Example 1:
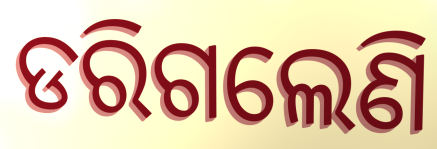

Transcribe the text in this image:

ଡରିଗଲେଣି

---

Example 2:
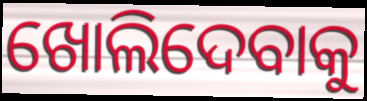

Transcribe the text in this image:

ଖୋଲିଦେବାକୁ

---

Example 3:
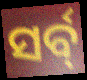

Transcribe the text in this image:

ସର୍ବ୍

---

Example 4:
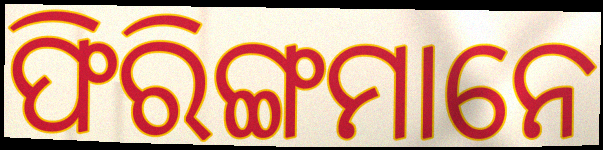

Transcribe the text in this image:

ଫିରିଙ୍ଗମାନେ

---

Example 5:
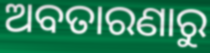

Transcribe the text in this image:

ଅବତାରଣାରୁ